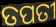
ତପତୀ